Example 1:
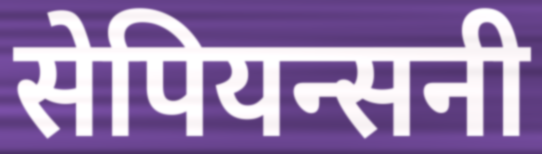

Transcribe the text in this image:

सेपियन्सनी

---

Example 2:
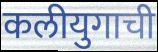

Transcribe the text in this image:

कलीयुगाची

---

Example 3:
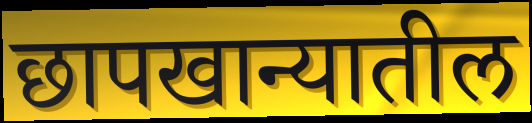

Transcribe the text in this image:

छापखान्यातील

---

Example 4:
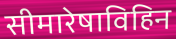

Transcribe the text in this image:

सीमारेषाविहिन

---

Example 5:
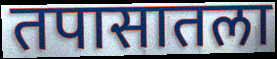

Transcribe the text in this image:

तपासातला